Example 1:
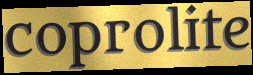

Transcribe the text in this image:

coprolite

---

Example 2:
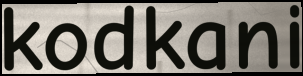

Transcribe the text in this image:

kodkani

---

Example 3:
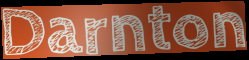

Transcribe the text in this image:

Darnton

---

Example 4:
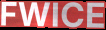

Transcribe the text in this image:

FWICE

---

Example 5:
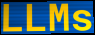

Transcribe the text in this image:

LLMs